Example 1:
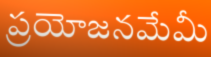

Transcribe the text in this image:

ప్రయోజనమేమీ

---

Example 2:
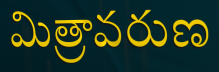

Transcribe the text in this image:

మిత్రావరుణ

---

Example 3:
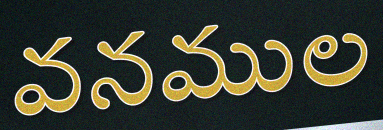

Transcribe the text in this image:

వనముల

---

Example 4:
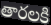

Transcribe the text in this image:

తారలకి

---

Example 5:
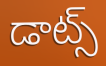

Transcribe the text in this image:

డాట్స్